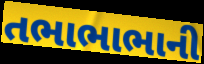
તભાભાભાની